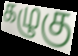
கழுகு